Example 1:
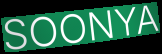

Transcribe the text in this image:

SOONYA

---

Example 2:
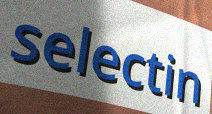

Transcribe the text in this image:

selectin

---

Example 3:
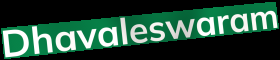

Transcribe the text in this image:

Dhavaleswaram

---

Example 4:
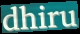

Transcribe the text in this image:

dhiru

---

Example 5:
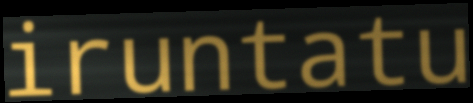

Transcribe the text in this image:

iruntatu